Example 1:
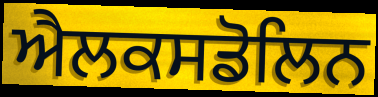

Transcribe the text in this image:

ਐਲਕਸਡੋਲਿਨ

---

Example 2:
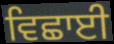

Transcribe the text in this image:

ਵਿਛਾਈ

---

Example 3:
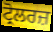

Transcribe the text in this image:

ਟ੍ਰੋਲਰਜ਼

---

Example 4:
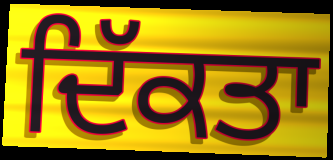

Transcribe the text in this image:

ਦਿੱਕਤਾ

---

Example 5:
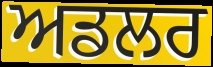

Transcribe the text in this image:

ਅਡਲਰ